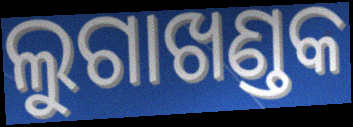
ଲୁଗାଖଣ୍ଡକ